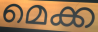
മെക്ക